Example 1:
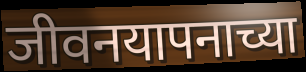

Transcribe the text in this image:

जीवनयापनाच्या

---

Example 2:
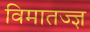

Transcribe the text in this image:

विमातज्ज्ञ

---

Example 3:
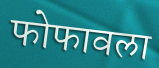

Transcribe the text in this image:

फोफावला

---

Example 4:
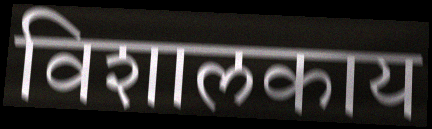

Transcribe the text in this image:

विशालकाय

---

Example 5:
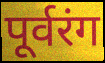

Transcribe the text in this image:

पूर्वरंग